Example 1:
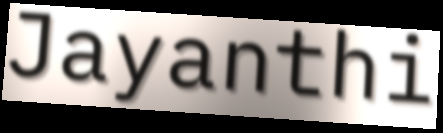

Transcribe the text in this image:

Jayanthi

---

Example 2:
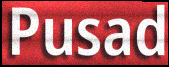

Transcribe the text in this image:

Pusad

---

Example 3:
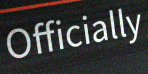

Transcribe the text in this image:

Officially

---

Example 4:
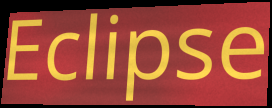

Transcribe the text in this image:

Eclipse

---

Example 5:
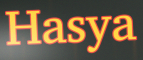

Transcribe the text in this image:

Hasya